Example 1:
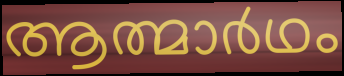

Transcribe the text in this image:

ആത്മാർഥം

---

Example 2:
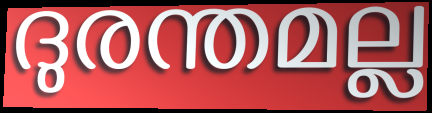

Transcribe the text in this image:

ദുരന്തമല്ല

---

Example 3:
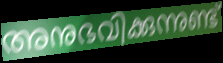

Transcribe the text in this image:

അനുഭവിക്കുന്നുണ്ട്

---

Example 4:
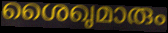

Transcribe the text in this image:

ശൈഖുമാരും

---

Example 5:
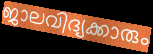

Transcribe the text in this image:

ജാലവിദ്യക്കാരും